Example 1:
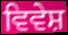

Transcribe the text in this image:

ਵਿਵੇਸ਼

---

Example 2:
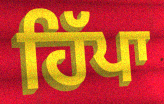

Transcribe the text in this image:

ਹਿੱਪਾ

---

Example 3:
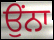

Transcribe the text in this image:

ਉੰਨਾ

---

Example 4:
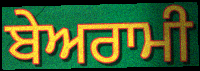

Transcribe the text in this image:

ਬੇਅਰਾਮੀ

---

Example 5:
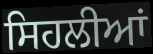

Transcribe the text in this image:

ਸਿਹਲੀਆਂ